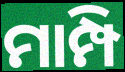
ମାମ୍ପି